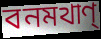
বনমথাণ্